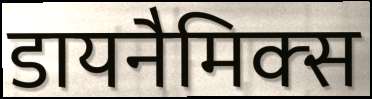
डायनैमिक्‍स